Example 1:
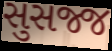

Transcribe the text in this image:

સુસજ્જ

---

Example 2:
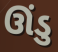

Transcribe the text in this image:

ઊંડુ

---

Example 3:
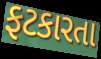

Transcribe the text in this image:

ફટકારતા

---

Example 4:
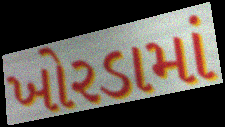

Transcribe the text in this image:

ખોરડામાં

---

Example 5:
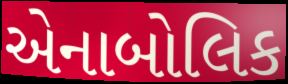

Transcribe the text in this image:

એનાબોલિક